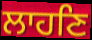
ਲਾਹਣਿ